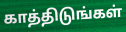
காத்திடுங்கள்